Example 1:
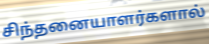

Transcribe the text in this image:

சிந்தனையாளர்களால்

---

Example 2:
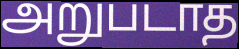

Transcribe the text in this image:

அறுபடாத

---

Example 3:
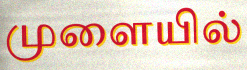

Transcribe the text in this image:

முளையில்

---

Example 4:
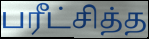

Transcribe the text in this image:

பரீட்சித்த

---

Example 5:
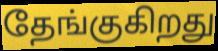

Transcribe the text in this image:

தேங்குகிறது